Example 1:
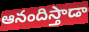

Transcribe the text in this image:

ఆనందిస్తాడా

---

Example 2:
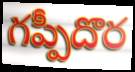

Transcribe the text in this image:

గప్పీదొర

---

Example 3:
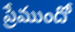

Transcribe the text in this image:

ప్రేముందో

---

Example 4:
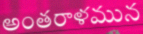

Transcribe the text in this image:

అంతరాళమున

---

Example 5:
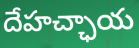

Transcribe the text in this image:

దేహచ్ఛాయ